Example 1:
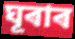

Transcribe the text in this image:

ঘূৰাৰ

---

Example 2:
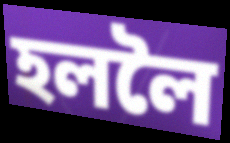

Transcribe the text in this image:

হললৈ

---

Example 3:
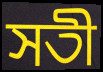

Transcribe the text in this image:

সতী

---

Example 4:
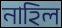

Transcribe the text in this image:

নাহিল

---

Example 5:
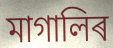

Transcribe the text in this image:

মাগালিৰ